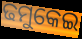
ଢମୁକେଇ